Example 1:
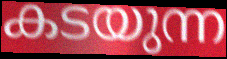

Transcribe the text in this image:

കടയുന്ന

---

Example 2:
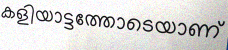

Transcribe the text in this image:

കളിയാട്ടത്തോടെയാണ്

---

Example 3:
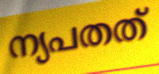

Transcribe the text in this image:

ന്യപതത്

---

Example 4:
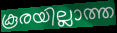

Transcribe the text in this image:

കൂരയില്ലാത്ത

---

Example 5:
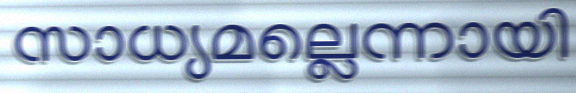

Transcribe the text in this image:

സാധ്യമല്ലെന്നായി